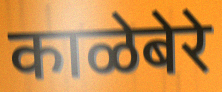
काळेबेरे